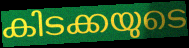
കിടക്കയുടെ